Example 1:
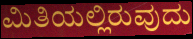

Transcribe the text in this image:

ಮಿತಿಯಲ್ಲಿರುವುದು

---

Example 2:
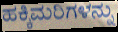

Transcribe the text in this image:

ಹಕ್ಕಿಮರಿಗಳನ್ನು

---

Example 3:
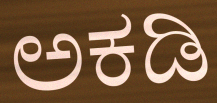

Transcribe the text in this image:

ಅಕಡಿ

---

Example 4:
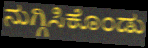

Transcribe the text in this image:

ನುಗ್ಗಿಸಿಕೊಂಡು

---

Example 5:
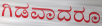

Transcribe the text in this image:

ಗಿಡವಾದರೂ